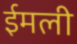
ईमली